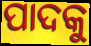
ପାଦକୁ